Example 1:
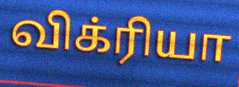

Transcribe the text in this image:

விக்ரியா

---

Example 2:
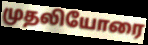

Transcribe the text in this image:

முதலியோரை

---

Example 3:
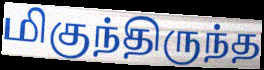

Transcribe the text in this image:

மிகுந்திருந்த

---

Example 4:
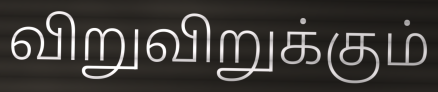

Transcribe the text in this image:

விறுவிறுக்கும்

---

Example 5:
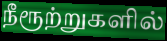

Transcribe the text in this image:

நீரூற்றுகளில்